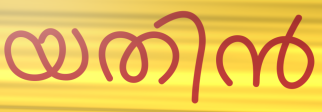
യതിൻ